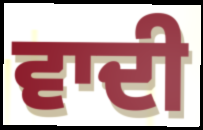
ਵਾਦੀ